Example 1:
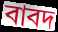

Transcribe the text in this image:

বাবদ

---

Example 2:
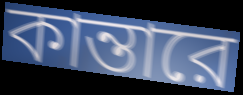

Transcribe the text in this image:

কান্তারে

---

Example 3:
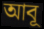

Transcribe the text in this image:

আবূ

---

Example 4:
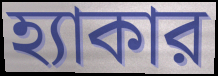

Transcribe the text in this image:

হ্যাকার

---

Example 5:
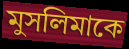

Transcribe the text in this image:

মুসলিমাকে